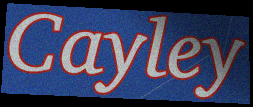
Cayley